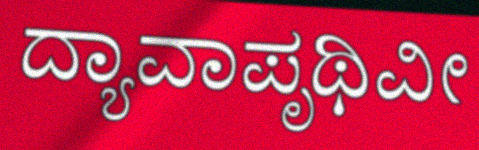
ದ್ಯಾವಾಪೃಥಿವೀ